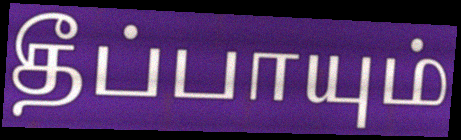
தீப்பாயும்